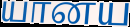
யானய